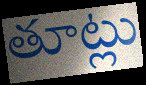
తూట్లు